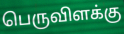
பெருவிளக்கு